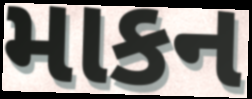
માકન